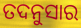
ତଦନୁସାର